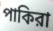
পাকিরা